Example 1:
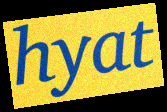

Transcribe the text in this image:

hyat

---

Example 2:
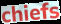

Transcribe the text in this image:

chiefs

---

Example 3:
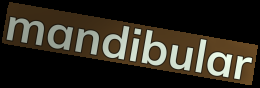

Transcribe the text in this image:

mandibular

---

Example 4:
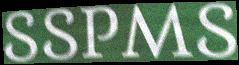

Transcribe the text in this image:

SSPMS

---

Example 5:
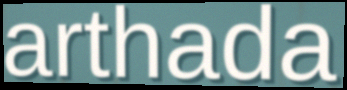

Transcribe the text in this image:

arthada